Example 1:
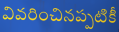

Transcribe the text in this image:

వివరించినప్పటికీ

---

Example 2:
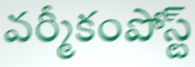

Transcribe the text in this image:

వర్మీకంపోస్ట్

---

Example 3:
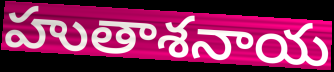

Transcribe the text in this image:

హుతాశనాయ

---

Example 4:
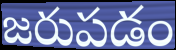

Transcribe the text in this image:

జరుపడం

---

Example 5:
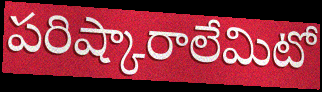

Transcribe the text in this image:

పరిష్కారాలేమిటో